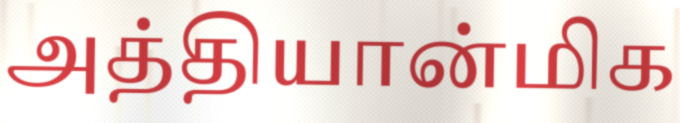
அத்தியான்மிக